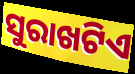
ସୁରାଖଟିଏ